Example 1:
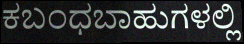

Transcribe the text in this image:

ಕಬಂಧಬಾಹುಗಳಲ್ಲಿ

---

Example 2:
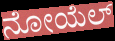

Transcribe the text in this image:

ನೋಯೆಲ್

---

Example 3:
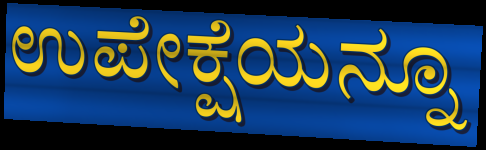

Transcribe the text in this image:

ಉಪೇಕ್ಷೆಯನ್ನೂ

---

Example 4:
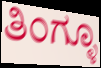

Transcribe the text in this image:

ತಿಂಗ್ಳೂ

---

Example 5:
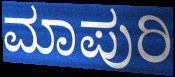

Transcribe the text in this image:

ಮಾಪುರಿ